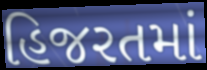
હિજરતમાં